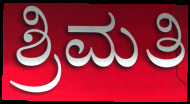
ಶ್ರಿಮತಿ